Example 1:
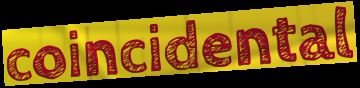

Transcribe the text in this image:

coincidental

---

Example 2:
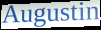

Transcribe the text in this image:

Augustin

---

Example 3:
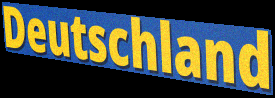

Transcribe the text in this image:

Deutschland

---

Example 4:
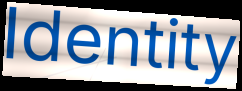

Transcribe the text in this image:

Identity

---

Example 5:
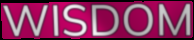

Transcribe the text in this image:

WISDOM